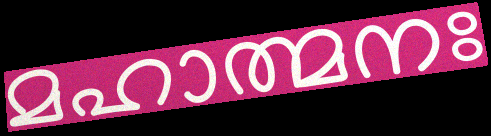
മഹാത്മനഃ